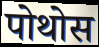
पोथोस